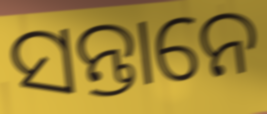
ସନ୍ତାନେ